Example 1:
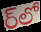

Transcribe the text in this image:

ర్‌లో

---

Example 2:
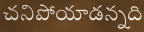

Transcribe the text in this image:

చనిపోయాడన్నది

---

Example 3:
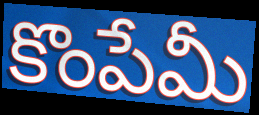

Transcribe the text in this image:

కొంపేమీ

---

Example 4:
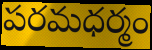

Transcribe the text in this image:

పరమధర్మం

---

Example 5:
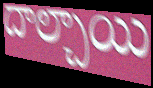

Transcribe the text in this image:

దాల్చాయి